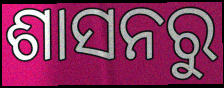
ଶାସନରୁ